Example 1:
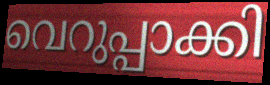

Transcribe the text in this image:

വെറുപ്പാക്കി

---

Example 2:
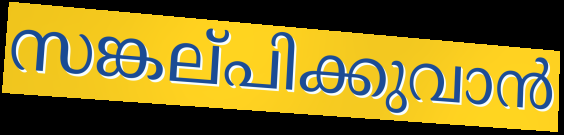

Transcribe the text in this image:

സങ്കല്‌പിക്കുവാൻ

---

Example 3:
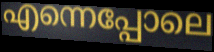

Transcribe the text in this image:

എന്നെപ്പോലെ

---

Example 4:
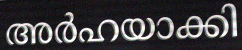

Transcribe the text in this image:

അർഹയാക്കി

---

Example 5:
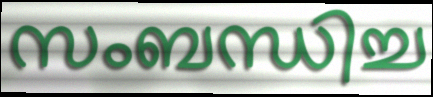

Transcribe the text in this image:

സംബന്ധിച്ച